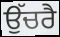
ਉੱਚਰੈ